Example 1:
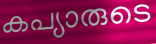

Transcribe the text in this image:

കപ്യാരുടെ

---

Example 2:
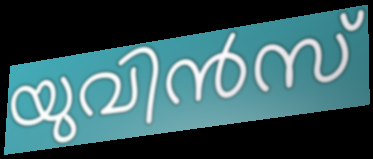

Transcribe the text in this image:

യുവിൻസ്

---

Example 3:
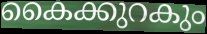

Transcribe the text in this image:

കൈക്കുറകും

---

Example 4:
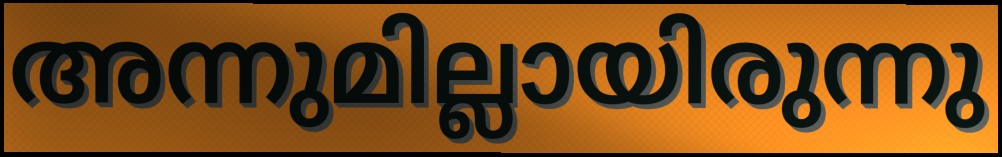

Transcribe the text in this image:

അന്നുമില്ലായിരുന്നു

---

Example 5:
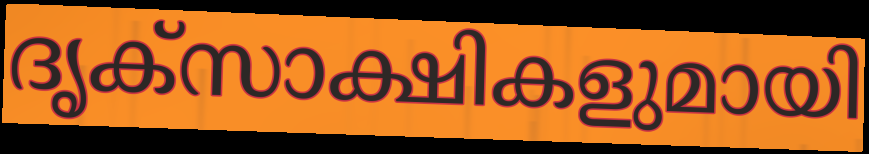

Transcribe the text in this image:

ദൃക്സാക്ഷികളുമായി